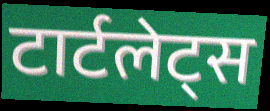
टार्टलेट्स